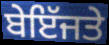
ਬੇਇੱਜਤੇ